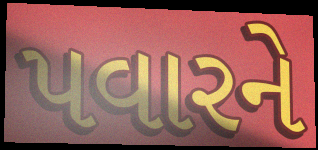
પવારને